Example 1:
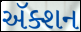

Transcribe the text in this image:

ઍક્શન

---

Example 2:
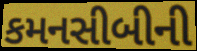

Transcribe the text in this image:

કમનસીબીની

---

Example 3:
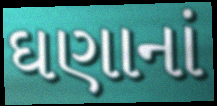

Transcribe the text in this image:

ઘણાનાં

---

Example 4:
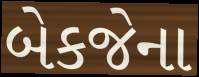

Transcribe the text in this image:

બેકજેના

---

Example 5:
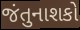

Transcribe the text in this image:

જંતુનાશકો